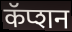
कॅप्शन